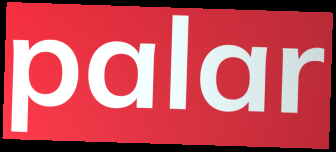
palar